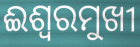
ଈଶ୍ୱରମୁଖୀ